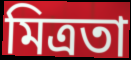
মিত্ৰতা